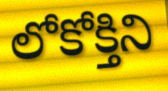
లోకోక్తిని